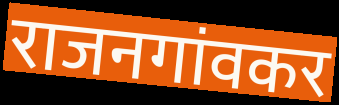
राजनगांवकर